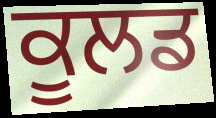
ਕੂਲਡ